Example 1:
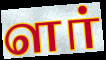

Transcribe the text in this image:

ளர்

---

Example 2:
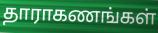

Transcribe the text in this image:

தாராகணங்கள்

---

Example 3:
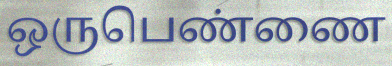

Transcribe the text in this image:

ஒருபெண்ணை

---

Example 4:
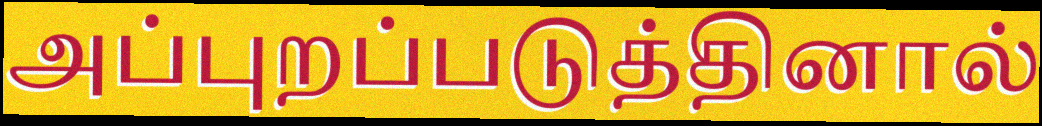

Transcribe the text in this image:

அப்புறப்படுத்தினால்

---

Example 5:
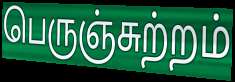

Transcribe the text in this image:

பெருஞ்சுற்றம்